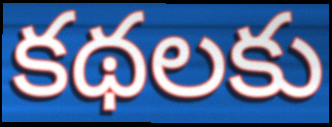
కథలకు